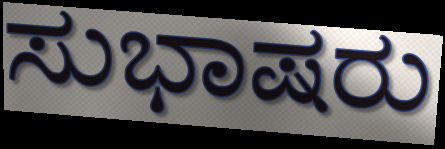
ಸುಭಾಷರು